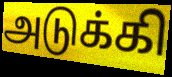
அடுக்கி